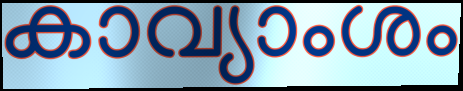
കാവ്യാംശം